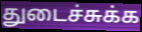
துடைச்சுக்க